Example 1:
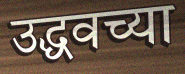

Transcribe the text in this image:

उद्धवच्या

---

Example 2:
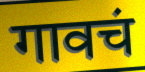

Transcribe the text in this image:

गावचं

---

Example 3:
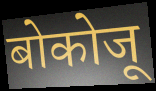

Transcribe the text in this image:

बोकोजू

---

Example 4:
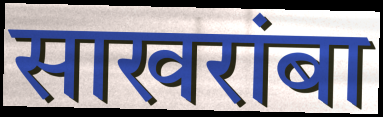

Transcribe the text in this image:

साखरांबा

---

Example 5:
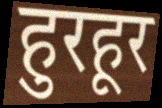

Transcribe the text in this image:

हुरहूर